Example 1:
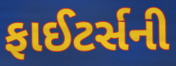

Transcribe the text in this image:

ફાઈટર્સની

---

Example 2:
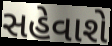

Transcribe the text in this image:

સહેવાશે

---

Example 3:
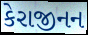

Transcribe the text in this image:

કેરાજીનન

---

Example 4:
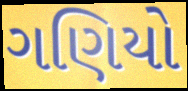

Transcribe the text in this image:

ગણિયો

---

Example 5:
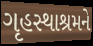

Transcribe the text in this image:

ગૃહસ્થાશ્રમને